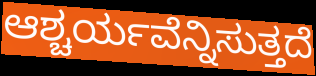
ಆಶ್ಚರ್ಯವೆನ್ನಿಸುತ್ತದೆ